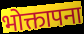
भोक्तापना